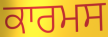
ਕਾਰਮਸ